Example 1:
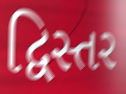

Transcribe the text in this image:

દ્વિસ્તર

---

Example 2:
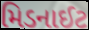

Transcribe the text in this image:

મિડનાઈટ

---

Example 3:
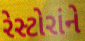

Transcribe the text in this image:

રેસ્ટોરાંને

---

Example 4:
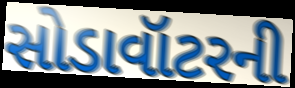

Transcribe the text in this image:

સોડાવૉટરની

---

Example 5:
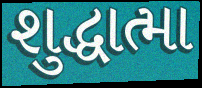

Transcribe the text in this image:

શુદ્ધાત્મા